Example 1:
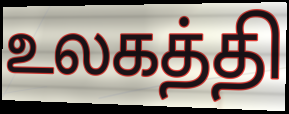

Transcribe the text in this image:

உலகத்தி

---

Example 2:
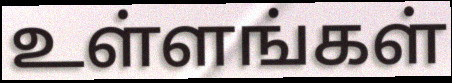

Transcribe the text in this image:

உள்ளங்கள்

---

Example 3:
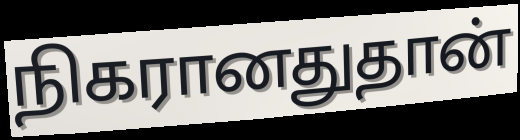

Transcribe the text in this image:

நிகரானதுதான்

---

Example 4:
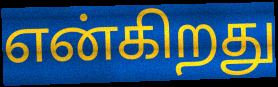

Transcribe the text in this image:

என்கிறது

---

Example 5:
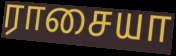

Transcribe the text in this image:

ராசையா